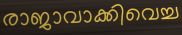
രാജാവാക്കിവെച്ച